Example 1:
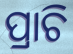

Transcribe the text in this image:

ପ୍ରାଚି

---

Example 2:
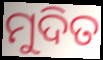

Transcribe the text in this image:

ମୁଦିତ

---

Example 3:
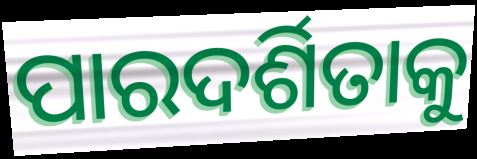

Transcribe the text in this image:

ପାରଦର୍ଶିତାକୁ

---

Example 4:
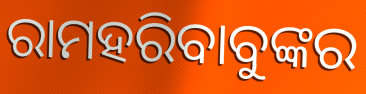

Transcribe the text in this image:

ରାମହରିବାବୁଙ୍କର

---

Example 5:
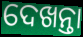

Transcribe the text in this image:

ଦେଖନ୍ତା